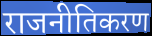
राजनीतिकरण